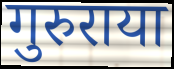
गुरुराया